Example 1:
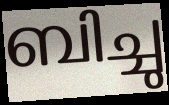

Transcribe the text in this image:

ബിച്ചു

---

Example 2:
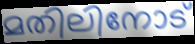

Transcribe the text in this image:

മതിലിനോട്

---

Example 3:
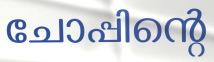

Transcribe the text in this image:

ചോപ്പിന്റെ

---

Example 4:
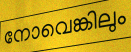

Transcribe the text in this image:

നോവെങ്കിലും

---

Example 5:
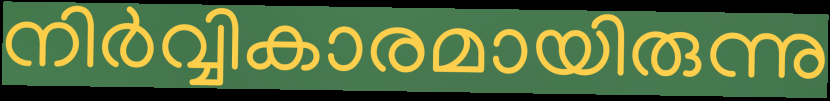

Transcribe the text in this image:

നിർവ്വികാരമായിരുന്നു